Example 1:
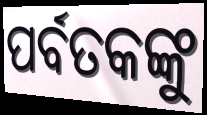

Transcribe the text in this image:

ପର୍ବତକଙ୍କୁ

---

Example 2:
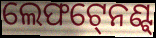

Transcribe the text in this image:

ଲେଫଟ୍‍ନେଣ୍ଟ୍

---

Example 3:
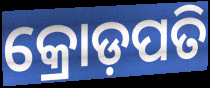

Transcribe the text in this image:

କ୍ରୋଡ଼ପତି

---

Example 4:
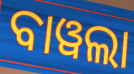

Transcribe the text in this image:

ବାୱଲା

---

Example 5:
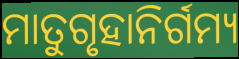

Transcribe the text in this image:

ମାତୁଗୃହାନିର୍ଗମ୍ୟ